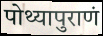
पोथ्यापुराणं